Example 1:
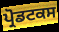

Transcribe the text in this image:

ਪ੍ਰੋਡਟਕਸ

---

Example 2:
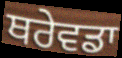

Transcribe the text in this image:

ਥਰੇਵਡਾ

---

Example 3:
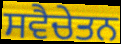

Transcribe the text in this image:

ਸਵੈਚੇਤਨ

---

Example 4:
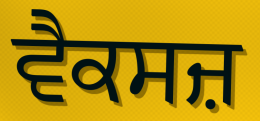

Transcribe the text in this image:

ਵੈਕਸਜ਼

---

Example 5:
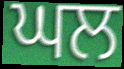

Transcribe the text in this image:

ਘਲ